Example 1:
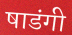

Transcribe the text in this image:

षाडंगी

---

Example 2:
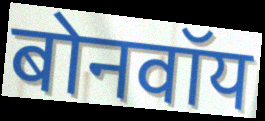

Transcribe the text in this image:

बोनवॉय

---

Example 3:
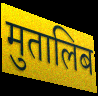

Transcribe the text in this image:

मुतालिब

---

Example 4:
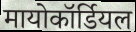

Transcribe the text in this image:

मायोकॉर्डियल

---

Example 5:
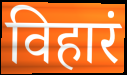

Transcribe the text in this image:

विहारं